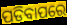
ପଡିବାପରେ